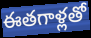
ఈతగాళ్లతో